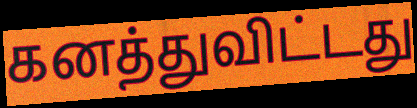
கனத்துவிட்டது